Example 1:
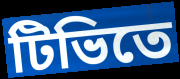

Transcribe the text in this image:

টিভিতে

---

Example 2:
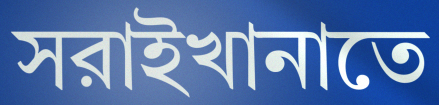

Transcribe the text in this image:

সরাইখানাতে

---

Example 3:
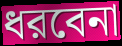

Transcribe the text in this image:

ধরবেনা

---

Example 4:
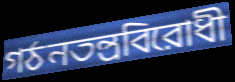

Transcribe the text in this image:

গঠনতন্ত্রবিরোধী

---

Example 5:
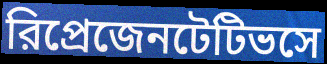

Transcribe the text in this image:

রিপ্রেজেনটেটিভসে